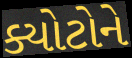
ક્યોટોને